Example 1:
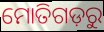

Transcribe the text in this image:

ମୋତିଗଡ଼ରୁ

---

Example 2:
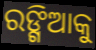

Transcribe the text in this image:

ରଙ୍ଗିଆକୁ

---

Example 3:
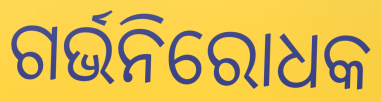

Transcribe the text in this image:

ଗର୍ଭନିରୋଧକ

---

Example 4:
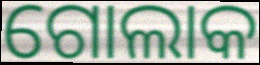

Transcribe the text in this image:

ଗୋଲାକ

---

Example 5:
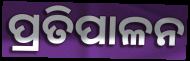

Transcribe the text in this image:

ପ୍ରତିପାଳନ